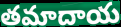
తమాదాయ